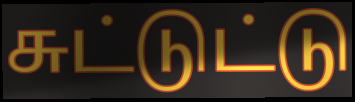
சுட்டுட்டு